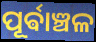
ପୂର୍ଵାଞ୍ଚଳ